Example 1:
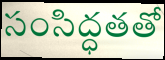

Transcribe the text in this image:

సంసిద్ధతతో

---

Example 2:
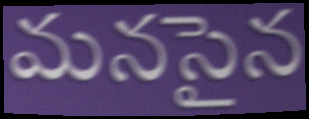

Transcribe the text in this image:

మనసైన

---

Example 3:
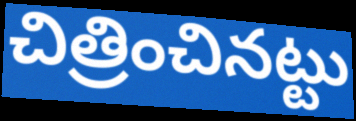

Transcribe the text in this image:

చిత్రించినట్టు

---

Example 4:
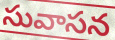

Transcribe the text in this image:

సువాసన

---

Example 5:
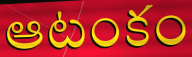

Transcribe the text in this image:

ఆటంకం